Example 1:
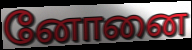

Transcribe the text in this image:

னோனை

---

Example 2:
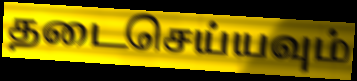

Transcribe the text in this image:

தடைசெய்யவும்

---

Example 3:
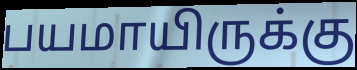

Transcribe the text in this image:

பயமாயிருக்கு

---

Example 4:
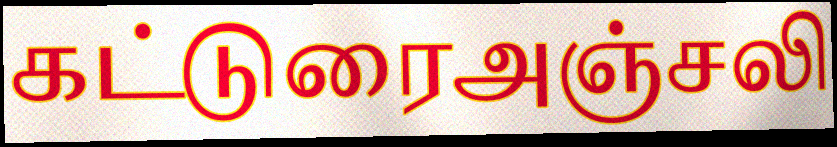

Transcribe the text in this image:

கட்டுரைஅஞ்சலி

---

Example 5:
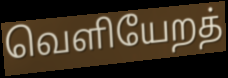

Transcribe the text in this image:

வெளியேறத்